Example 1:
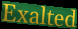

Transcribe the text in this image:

Exalted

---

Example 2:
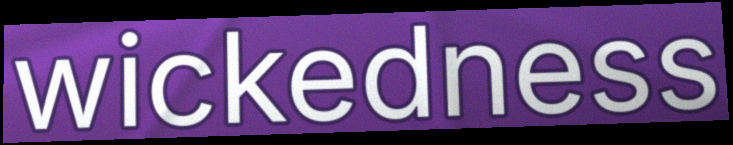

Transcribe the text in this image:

wickedness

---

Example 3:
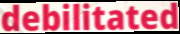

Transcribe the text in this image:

debilitated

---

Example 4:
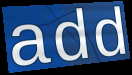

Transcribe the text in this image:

add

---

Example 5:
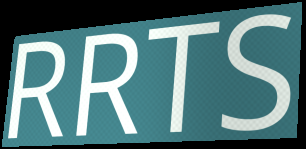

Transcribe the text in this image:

RRTS